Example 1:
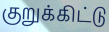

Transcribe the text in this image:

குறுக்கிட்டு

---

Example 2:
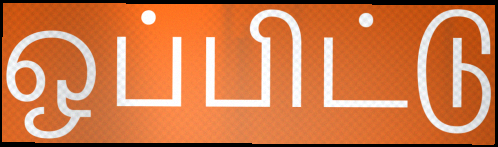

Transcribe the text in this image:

ஒப்பிட்டு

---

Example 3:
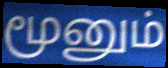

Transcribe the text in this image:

மூனும்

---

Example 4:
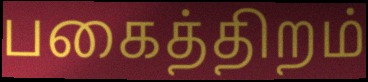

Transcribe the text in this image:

பகைத்திறம்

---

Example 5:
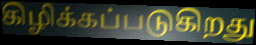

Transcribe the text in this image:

கிழிக்கப்படுகிறது